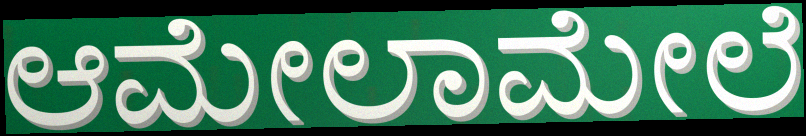
ಆಮೇಲಾಮೇಲೆ